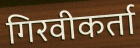
गिरवीकर्ता